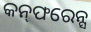
କନ୍‌ଫରେନ୍ସ